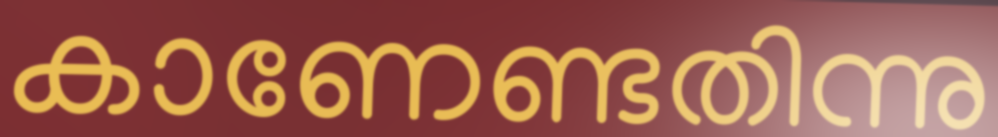
കാണേണ്ടതിന്നു